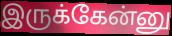
இருக்கேன்னு